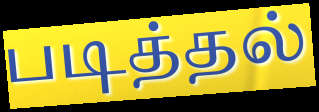
படித்தல்